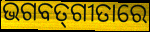
ଭଗବତ୍‌ଗୀତାରେ